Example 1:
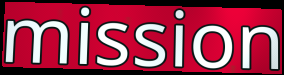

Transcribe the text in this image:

mission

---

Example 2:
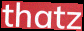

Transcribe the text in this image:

thatz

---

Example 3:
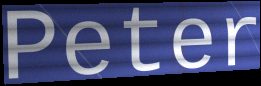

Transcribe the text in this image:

Peter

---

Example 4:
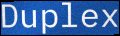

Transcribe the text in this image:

Duplex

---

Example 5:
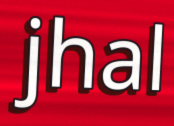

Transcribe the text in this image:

jhal